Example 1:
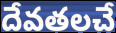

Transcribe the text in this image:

దేవతలచే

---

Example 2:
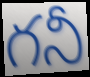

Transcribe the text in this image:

గనీ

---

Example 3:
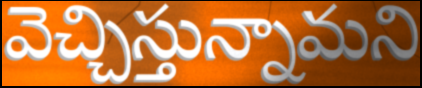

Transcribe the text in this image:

వెచ్చిస్తున్నామని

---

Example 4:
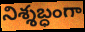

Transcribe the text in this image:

నిశ్శబ్ధంగా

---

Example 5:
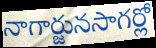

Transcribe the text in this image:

నాగార్జునసాగర్లో